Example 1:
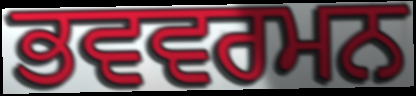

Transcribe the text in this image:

ਭਵਵਰਮਨ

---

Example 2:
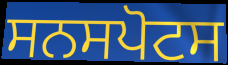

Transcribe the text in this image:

ਸਨਸਪੋਟਸ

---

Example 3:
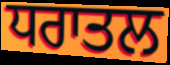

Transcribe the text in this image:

ਧਰਾਤਲ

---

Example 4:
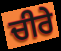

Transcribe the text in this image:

ਚੀਰੇ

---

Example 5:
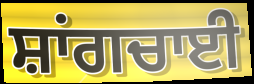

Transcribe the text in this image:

ਸ਼ਾਂਗਚਾਈ